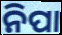
ନିପା